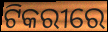
ଟିକରୀରେ